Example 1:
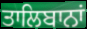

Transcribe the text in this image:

ਤਾਲਿਬਾਨਾਂ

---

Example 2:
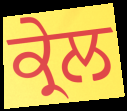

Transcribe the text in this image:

ਕ੍ਰੇਲ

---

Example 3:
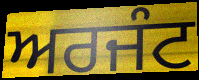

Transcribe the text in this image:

ਅਰਜੰਟ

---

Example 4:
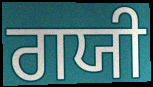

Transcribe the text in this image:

ਗਯੀ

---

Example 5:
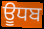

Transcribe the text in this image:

ਊਧਬ